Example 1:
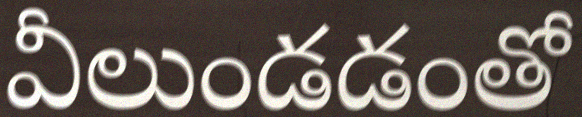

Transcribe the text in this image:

వీలుండడంతో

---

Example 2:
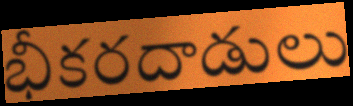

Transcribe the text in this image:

భీకరదాడులు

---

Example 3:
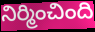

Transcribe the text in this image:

నిర్మించింది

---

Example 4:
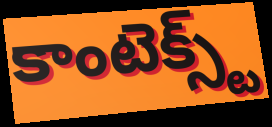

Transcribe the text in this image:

కాంటెక్స్ట్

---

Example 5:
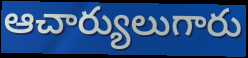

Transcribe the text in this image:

ఆచార్యులుగారు